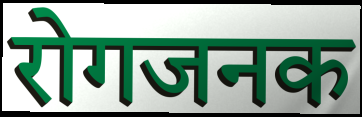
रोगजनक